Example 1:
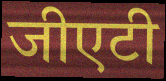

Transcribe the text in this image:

जीएटी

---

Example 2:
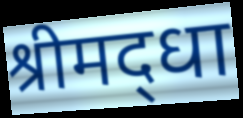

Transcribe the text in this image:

श्रीमद्धा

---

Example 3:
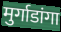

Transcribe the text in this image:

मुर्गाडांगा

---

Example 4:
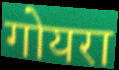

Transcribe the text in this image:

गोयरा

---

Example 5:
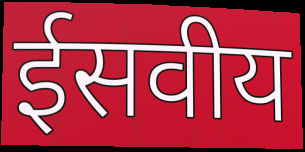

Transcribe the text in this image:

ईसवीय